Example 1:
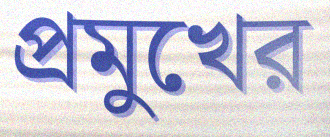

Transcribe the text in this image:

প্রমুখের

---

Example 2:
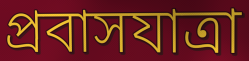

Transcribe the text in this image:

প্রবাসযাত্রা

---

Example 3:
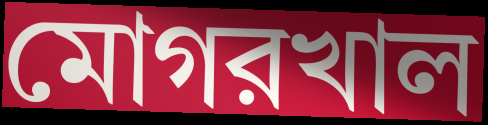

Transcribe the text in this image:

মোগরখাল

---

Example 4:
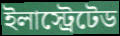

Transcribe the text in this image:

ইলাস্ট্রেটেড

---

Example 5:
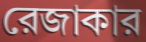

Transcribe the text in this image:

রেজাকার